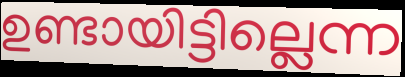
ഉണ്ടായിട്ടില്ലെന്ന